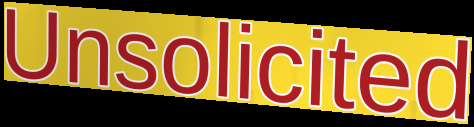
Unsolicited